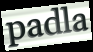
padla